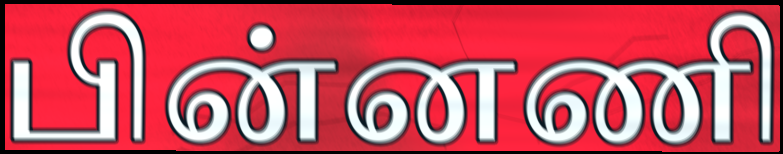
பின்னணி